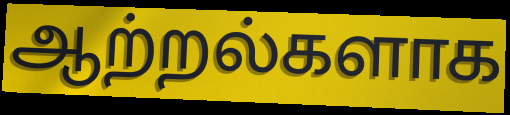
ஆற்றல்களாக